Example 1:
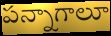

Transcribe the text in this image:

పన్నాగాలూ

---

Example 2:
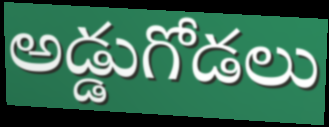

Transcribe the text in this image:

అడ్డుగోడలు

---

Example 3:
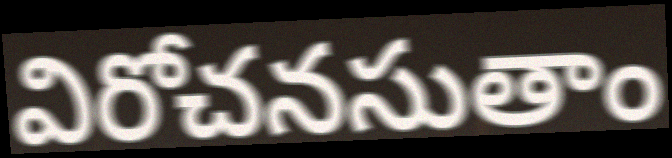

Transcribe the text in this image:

విరోచనసుతాం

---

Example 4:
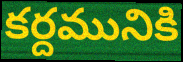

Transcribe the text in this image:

కర్దమునికి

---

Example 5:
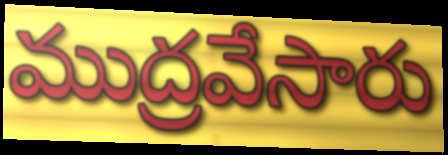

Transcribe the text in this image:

ముద్రవేసారు